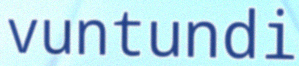
vuntundi